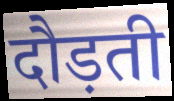
दौड़ती